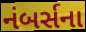
નંબર્સના